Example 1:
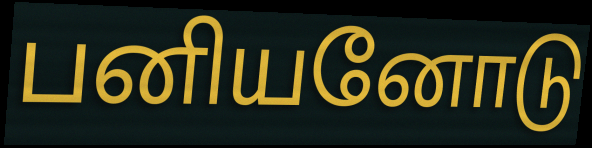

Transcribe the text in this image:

பனியனோடு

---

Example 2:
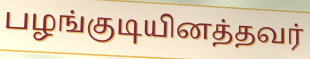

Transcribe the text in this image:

பழங்குடியினத்தவர்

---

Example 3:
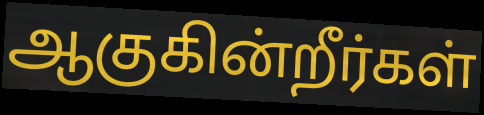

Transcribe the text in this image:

ஆகுகின்றீர்கள்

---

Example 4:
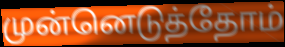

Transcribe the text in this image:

முன்னெடுத்தோம்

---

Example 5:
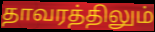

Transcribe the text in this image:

தாவரத்திலும்